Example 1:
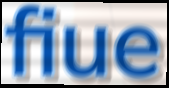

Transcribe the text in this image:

fiue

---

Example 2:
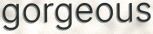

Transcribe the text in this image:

gorgeous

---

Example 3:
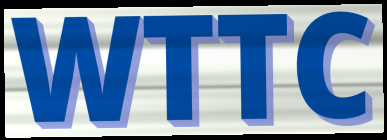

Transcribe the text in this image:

WTTC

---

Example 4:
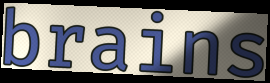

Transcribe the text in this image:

brains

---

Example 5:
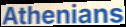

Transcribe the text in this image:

Athenians